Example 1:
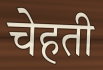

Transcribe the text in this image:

चेहती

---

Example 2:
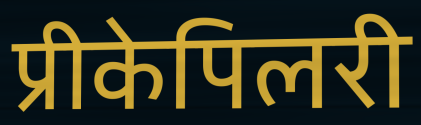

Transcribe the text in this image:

प्रीकेपिलरी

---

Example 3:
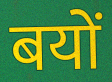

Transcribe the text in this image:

बयों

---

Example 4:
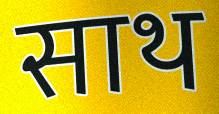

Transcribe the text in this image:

साथ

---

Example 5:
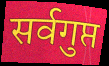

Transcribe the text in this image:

सर्वगुप्त